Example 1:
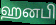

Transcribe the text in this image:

ஹனபி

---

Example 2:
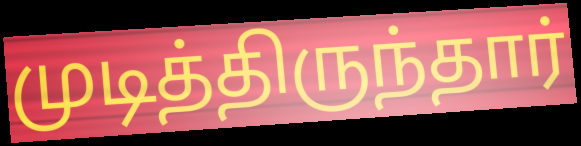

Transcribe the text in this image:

முடித்திருந்தார்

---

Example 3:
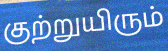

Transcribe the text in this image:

குற்றுயிரும்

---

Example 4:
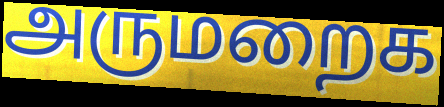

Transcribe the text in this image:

அருமறைக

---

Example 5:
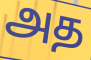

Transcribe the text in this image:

அத